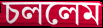
চললেম